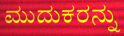
ಮುದುಕರನ್ನು